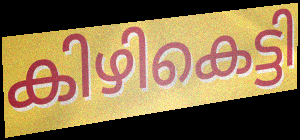
കിഴികെട്ടി